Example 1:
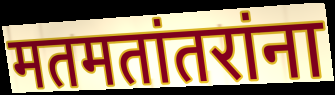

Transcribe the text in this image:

मतमतांतरांना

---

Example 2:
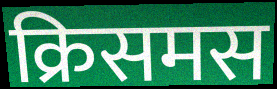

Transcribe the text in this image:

क्रिसमस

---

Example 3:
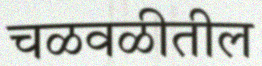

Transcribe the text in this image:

चळवळीतील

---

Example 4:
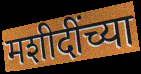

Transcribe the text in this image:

मशीदींच्या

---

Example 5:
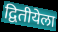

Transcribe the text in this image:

द्वितीयेला